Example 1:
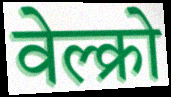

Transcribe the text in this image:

वेल्क्रो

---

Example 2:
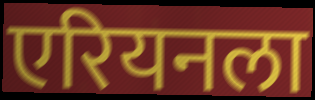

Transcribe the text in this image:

एरियनला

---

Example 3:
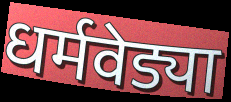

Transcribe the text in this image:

धर्मवेड्या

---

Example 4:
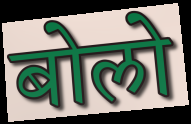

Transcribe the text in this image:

बोलो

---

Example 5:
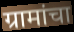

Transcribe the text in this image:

ग्रामांचा